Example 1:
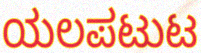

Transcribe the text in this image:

ಯಲಪಟುಟ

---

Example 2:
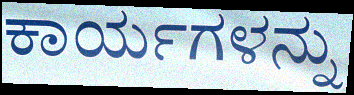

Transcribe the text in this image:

ಕಾರ್ಯಗಳನ್ನು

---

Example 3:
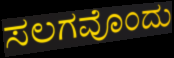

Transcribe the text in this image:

ಸಲಗವೊಂದು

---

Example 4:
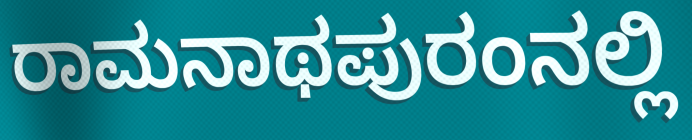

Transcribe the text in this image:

ರಾಮನಾಥಪುರಂನಲ್ಲಿ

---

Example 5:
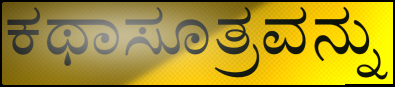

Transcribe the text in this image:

ಕಥಾಸೂತ್ರವನ್ನು